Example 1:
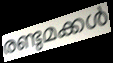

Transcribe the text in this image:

രണ്ടുമക്കൾ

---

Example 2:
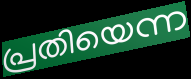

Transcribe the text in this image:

പ്രതിയെന്ന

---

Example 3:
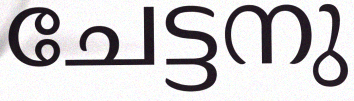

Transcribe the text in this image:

ചേട്ടനു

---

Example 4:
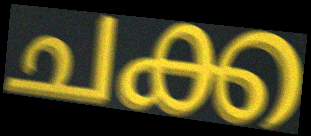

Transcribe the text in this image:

ചക്ക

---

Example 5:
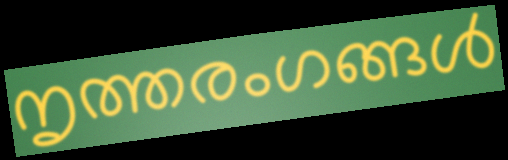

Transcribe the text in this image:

നൃത്തരംഗങ്ങൾ